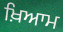
ਖ਼ਿਆਮ